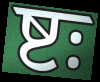
ष्टः